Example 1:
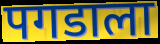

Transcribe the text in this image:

पगडाला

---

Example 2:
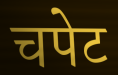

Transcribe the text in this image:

चपेट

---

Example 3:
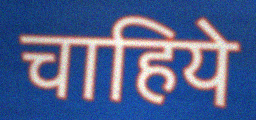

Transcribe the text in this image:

चाहिये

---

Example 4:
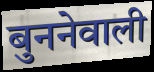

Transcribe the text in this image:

बुननेवाली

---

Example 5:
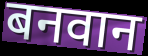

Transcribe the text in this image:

बनवान